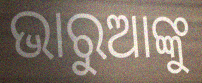
ଭାରୁଆଙ୍କୁ